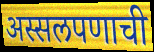
अस्सलपणाची